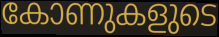
കോണുകളുടെ